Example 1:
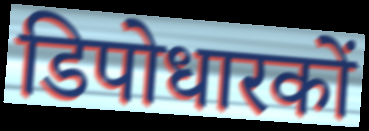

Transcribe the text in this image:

डिपोधारकों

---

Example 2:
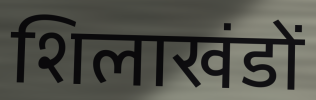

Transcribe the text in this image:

शिलाखंडों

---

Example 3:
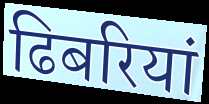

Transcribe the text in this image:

ढिबरियां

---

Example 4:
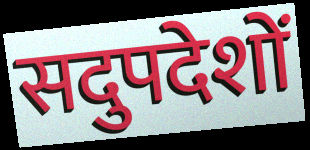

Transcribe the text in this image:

सदुपदेशों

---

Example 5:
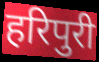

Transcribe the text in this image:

हरिपुरी